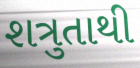
શત્રુતાથી